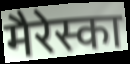
मैरेस्का